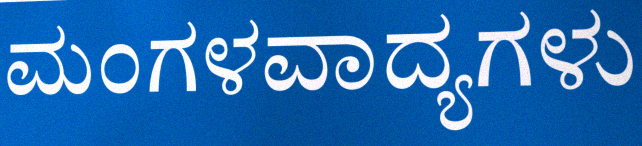
ಮಂಗಳವಾದ್ಯಗಳು